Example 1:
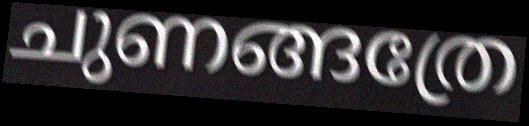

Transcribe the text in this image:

ചുണങ്ങത്രേ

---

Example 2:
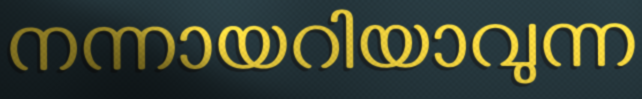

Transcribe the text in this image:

നന്നായറിയാവുന്ന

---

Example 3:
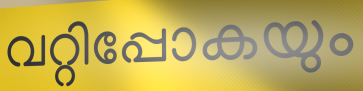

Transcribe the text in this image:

വറ്റിപ്പോകയും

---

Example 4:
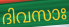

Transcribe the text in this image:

ദിവസാഃ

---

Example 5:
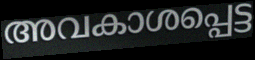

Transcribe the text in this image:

അവകാശപ്പെട്ട